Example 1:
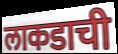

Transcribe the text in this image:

लाकडाची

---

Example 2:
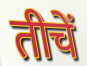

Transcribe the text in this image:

तीचें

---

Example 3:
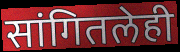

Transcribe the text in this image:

सांगितलेही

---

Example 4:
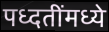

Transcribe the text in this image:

पध्दतींमध्ये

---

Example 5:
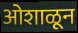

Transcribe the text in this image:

ओशाळून